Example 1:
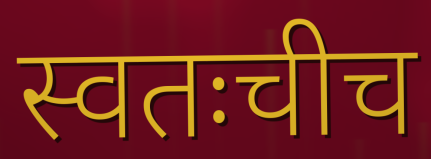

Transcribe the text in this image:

स्वतःचीच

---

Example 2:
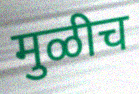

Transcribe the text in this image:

मुळीच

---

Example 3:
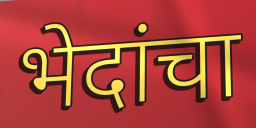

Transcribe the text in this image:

भेदांचा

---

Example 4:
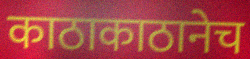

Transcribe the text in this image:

काठाकाठानेच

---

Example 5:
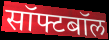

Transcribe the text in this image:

सॉफ्टबॉल